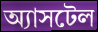
অ্যাসটেল